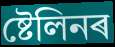
ষ্টেলিনৰ